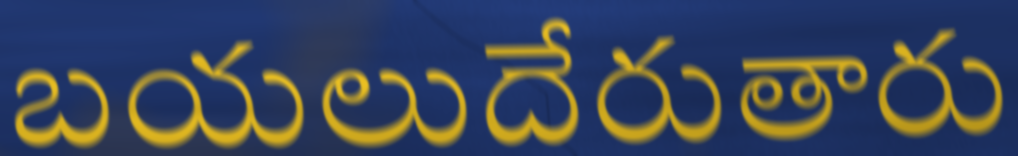
బయలుదేరుతారు